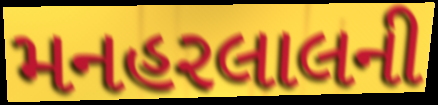
મનહરલાલની